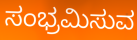
ಸಂಭ್ರಮಿಸುವ